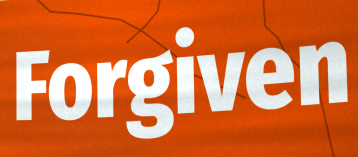
Forgiven